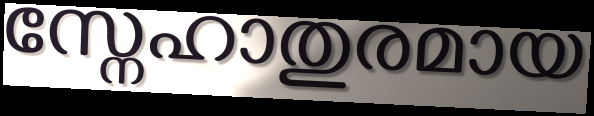
സ്നേഹാതുരമായ